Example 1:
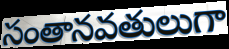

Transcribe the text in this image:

సంతానవతులుగా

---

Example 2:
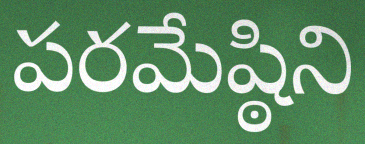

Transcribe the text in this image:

పరమేష్ఠిని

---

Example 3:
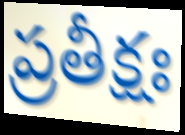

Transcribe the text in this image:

ప్రతీక్షః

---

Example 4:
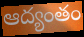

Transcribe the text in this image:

ఆద్యంతం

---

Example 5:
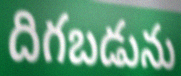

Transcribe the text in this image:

దిగబడును